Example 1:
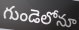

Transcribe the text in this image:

గుండెలోనూ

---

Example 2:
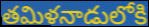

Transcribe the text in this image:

తమిళనాడులోకి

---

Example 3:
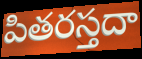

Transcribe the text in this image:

పితరస్తదా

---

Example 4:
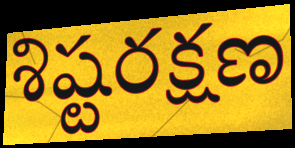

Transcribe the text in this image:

శిష్టరక్షణ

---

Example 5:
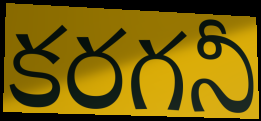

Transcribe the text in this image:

కరగనీ